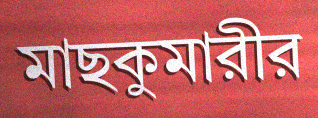
মাছকুমারীর